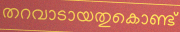
തറവാടായതുകൊണ്ട്